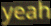
yeah